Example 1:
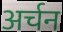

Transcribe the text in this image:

अर्चन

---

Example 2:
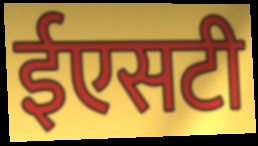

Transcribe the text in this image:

ईएसटी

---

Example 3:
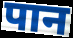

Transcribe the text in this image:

पान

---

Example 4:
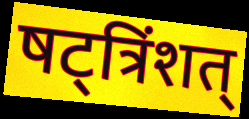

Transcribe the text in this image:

षट्त्रिंशत्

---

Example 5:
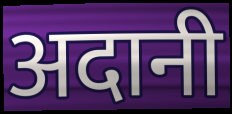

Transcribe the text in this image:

अदानी